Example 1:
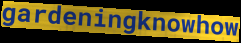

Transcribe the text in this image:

gardeningknowhow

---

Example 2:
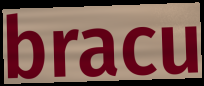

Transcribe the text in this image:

bracu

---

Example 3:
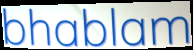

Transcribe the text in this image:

bhablam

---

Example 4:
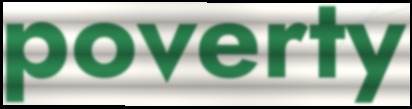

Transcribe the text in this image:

poverty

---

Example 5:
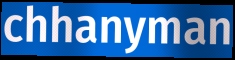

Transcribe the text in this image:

chhanyman